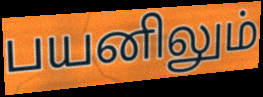
பயனிலும்